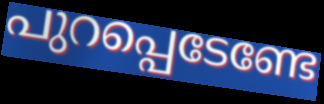
പുറപ്പെടേണ്ടേ